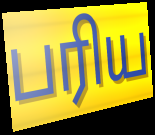
பரிய